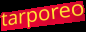
tarporeo